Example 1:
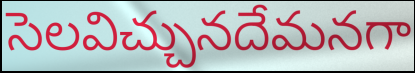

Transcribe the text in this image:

సెలవిచ్చునదేమనగా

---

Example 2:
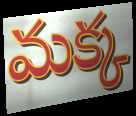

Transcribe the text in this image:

మక్క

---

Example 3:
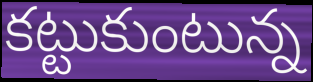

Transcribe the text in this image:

కట్టుకుంటున్న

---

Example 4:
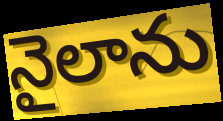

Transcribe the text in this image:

నైలాను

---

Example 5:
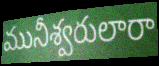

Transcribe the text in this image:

మునీశ్వరులారా